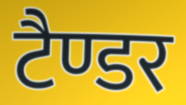
टैण्डर